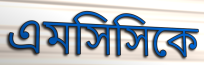
এমসিসিকে